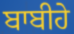
ਬਾਬੀਹੇ